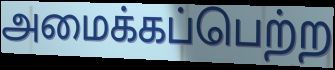
அமைக்கப்பெற்ற